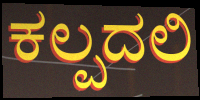
ಕಲ್ಪದಲಿ